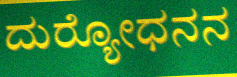
ದುರ‍್ಯೋಧನನ